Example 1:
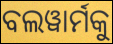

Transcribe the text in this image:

ବଲୱାର୍ମକୁ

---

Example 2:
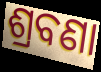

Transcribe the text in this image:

ଶ୍ରବଣା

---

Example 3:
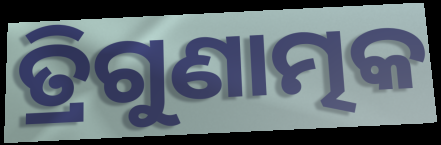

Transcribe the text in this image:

ତ୍ରିଗୁଣାତ୍ମକ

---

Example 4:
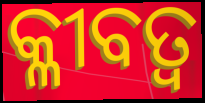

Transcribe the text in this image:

କ୍ଳୀବତ୍ବ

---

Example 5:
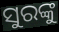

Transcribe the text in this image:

ସୁରଙ୍କୁ